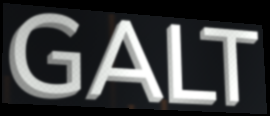
GALT